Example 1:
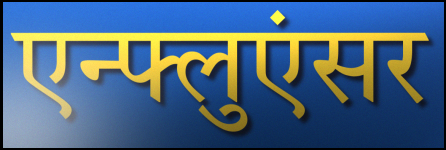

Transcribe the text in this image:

एन्फ्लुएंसर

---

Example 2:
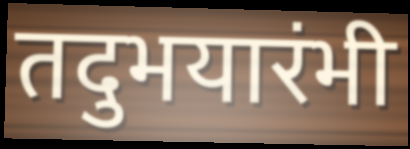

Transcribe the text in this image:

तदुभयारंभी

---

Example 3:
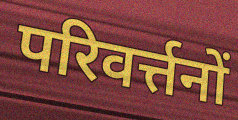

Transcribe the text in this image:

परिवर्त्तनों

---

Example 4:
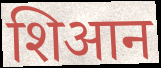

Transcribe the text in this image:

शिआन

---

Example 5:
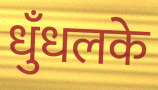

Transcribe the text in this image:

धुँधलके